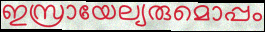
ഇസ്രായേല്യരുമൊപ്പം